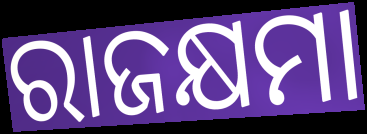
ରାଜକ୍ଷମା